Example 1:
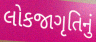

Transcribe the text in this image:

લોકજાગૃતિનું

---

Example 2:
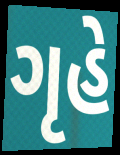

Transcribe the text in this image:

ગૃહે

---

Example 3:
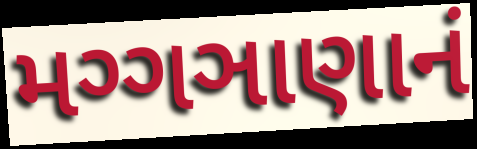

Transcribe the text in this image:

મગ્ગઞાણાનં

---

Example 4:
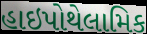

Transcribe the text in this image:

હાઇપોથેલામિક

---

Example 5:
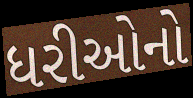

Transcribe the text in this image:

ધરીઓનો